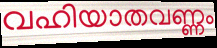
വഹിയാതവണ്ണം